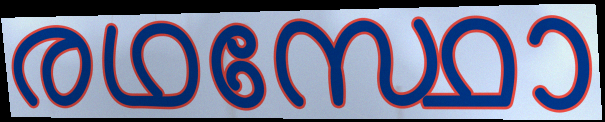
രഥസ്ഥോ